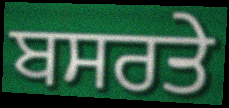
ਬਸਰਤੇ